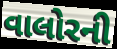
વાલોરની